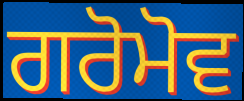
ਗਰੋਮੋਵ